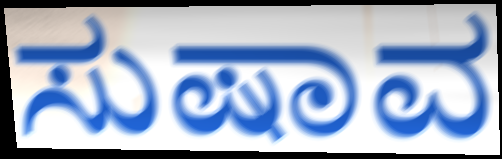
ಸುಷಾವ